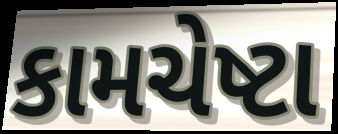
કામચેષ્ટા